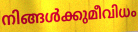
നിങ്ങൾക്കുമീവിധം